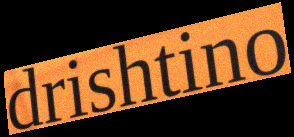
drishtino